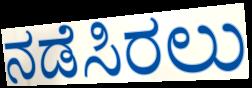
ನಡೆಸಿರಲು